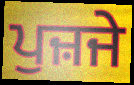
ਪੁਜ਼ਜੇ